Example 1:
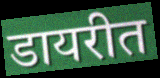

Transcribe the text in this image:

डायरीत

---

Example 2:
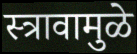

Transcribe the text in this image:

स्त्रावामुळे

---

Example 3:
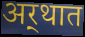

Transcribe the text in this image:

अर्थात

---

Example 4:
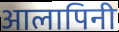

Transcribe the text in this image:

आलापिनी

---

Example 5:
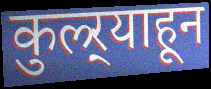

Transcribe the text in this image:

कुल्र्याहून